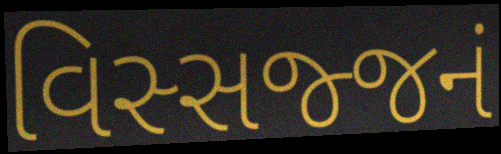
વિસ્સજ્જનં